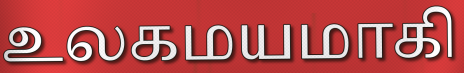
உலகமயமாகி